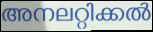
അനലറ്റിക്കൽ